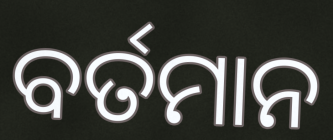
ବର୍ତମାନ